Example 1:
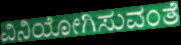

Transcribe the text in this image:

ವಿನಿಯೋಗಿಸುವಂತೆ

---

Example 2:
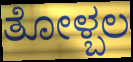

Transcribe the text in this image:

ತೋಳ್ಬಲ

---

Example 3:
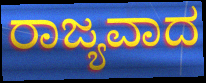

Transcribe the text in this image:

ರಾಜ್ಯವಾದ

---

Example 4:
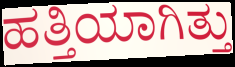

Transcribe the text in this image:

ಹತ್ತಿಯಾಗಿತ್ತು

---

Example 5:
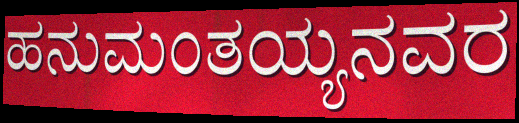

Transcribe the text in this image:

ಹನುಮಂತಯ್ಯನವರ